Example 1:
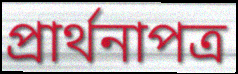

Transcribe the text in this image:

প্রার্থনাপত্র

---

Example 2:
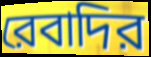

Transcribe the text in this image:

রেবাদির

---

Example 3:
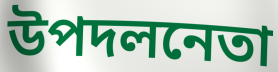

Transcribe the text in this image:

উপদলনেতা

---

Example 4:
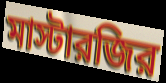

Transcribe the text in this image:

মাস্টারজির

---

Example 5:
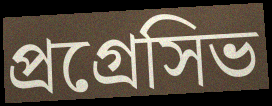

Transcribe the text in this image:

প্রগ্রেসিভ